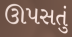
ઊપસતું